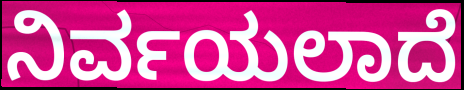
ನಿರ್ವಯಲಾದೆ